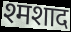
श्मशाद